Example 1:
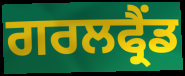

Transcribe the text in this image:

ਗਰਲਫ੍ਰੈਂਡ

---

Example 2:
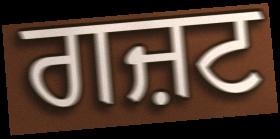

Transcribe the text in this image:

ਗਜ਼ਟ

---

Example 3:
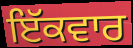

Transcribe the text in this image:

ਇੱਕਵਾਰ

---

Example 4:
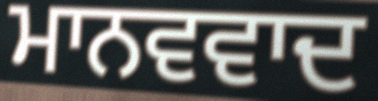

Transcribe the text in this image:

ਮਾਨਵਵਾਦ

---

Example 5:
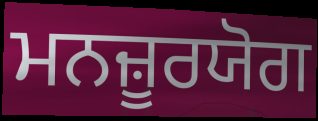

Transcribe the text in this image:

ਮਨਜ਼ੂਰਯੋਗ